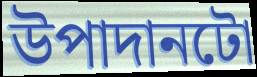
উপাদানটো